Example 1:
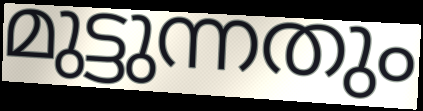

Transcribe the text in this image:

മുട്ടുന്നതും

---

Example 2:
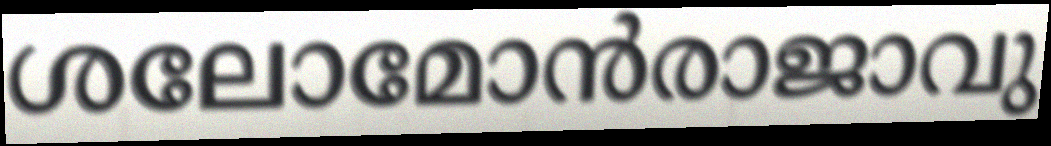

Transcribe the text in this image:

ശലോമോൻരാജാവു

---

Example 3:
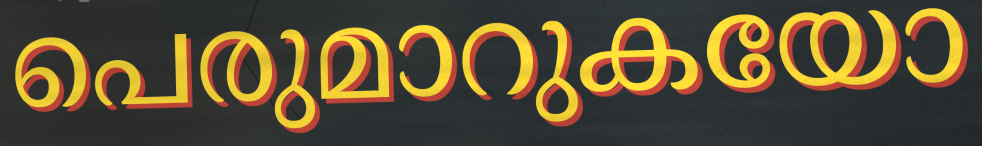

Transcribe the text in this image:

പെരുമാറുകയോ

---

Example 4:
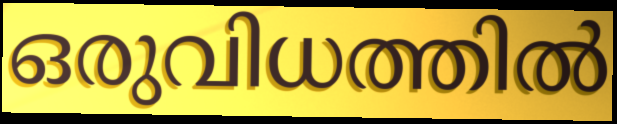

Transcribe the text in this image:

ഒരുവിധത്തിൽ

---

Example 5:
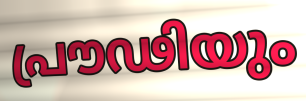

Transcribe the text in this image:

പ്രൗഢിയും